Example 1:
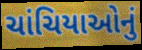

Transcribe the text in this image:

ચાંચિયાઓનું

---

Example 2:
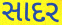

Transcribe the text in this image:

સાદર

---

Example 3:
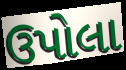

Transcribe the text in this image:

ઉપોલા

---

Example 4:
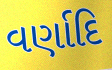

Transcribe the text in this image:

વર્ણાદિ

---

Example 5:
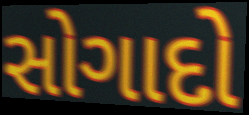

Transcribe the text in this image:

સોગાદો